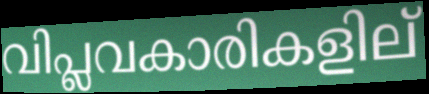
വിപ്ലവകാരികളില്